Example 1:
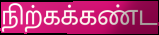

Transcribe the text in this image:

நிற்கக்கண்ட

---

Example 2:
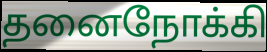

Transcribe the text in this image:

தனைநோக்கி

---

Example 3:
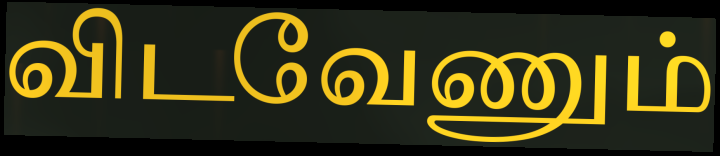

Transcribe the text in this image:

விடவேணும்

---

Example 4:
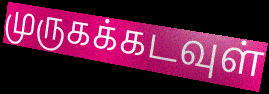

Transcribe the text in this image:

முருகக்கடவுள்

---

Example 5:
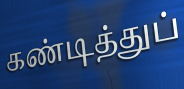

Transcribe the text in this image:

கண்டித்துப்